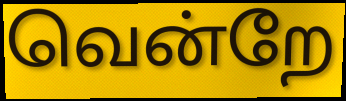
வென்றே